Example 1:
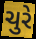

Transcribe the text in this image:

ચુરે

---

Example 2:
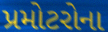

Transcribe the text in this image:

પ્રમોટરોના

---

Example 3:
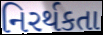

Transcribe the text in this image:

નિરર્થકતા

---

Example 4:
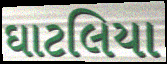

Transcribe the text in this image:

ઘાટલિયા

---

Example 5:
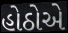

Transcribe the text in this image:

હોઠોએ